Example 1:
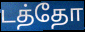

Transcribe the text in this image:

டத்தோ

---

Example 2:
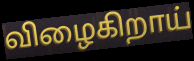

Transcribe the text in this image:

விழைகிறாய்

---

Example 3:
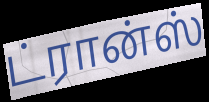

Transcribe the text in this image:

ட்ரான்ஸ்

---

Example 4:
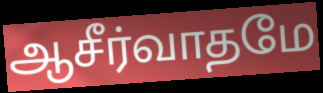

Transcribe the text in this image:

ஆசீர்வாதமே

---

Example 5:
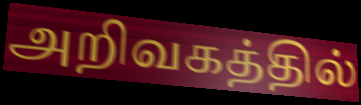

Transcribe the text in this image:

அறிவகத்தில்